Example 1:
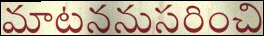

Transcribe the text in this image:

మాటననుసరించి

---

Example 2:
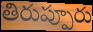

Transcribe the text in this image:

తిరుప్పూరు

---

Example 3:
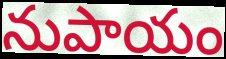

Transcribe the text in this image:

నుపాయం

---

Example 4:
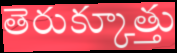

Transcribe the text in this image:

తెరుక్కూత్తు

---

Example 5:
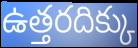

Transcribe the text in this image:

ఉత్తరదిక్కు